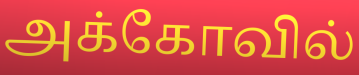
அக்கோவில்